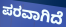
ಪರವಾಗಿದೆ